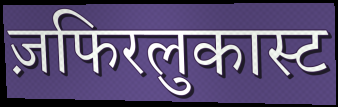
ज़फिरलुकास्ट